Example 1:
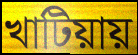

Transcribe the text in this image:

খাটিয়ায়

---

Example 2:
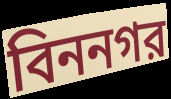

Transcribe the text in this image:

বিননগর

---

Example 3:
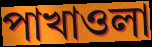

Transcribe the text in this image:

পাখাওলা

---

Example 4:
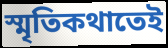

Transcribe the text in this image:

স্মৃতিকথাতেই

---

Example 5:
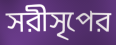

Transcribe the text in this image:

সরীসৃপের